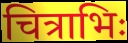
चित्राभिः